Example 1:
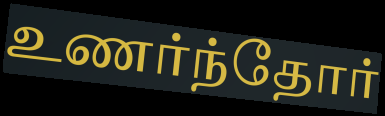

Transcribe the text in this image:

உணர்ந்தோர்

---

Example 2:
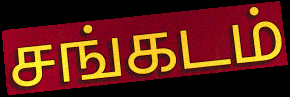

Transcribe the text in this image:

சங்கடம்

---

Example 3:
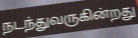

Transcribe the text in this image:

நடந்துவருகின்றது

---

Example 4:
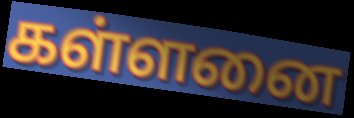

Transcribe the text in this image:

கள்ளனை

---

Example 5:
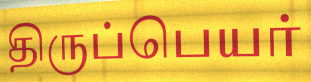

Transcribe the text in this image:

திருப்பெயர்